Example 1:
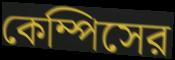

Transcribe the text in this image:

কেম্পিসের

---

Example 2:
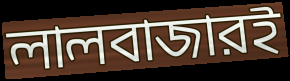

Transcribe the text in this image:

লালবাজারই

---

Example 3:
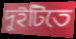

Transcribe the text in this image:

দুইটিতে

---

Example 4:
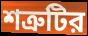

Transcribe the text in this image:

শত্রুটির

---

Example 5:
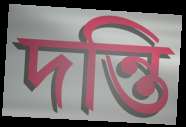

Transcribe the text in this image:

দন্তি